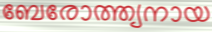
ബേരോത്ത്യനായ